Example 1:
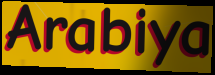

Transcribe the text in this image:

Arabiya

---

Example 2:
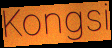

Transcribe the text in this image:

Kongsi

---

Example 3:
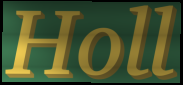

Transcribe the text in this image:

Holl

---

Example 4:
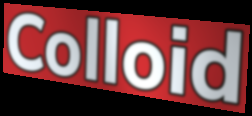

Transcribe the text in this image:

Colloid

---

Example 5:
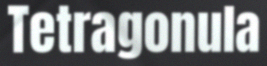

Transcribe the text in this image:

Tetragonula